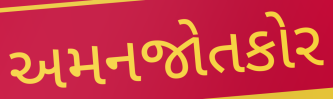
અમનજોતકોર